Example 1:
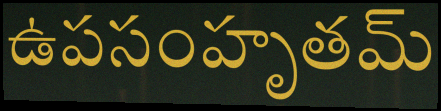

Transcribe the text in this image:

ఉపసంహృతమ్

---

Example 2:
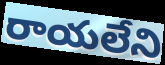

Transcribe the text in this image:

రాయలేని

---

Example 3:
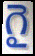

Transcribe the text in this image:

గై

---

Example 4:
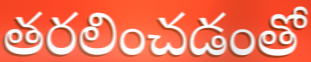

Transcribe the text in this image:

తరలించడంతో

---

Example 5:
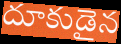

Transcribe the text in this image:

దూకుడైన